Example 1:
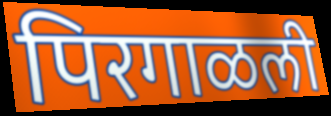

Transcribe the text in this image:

पिरगाळली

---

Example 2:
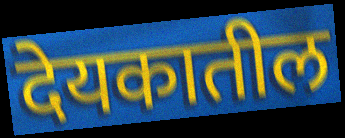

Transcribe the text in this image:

देयकातील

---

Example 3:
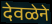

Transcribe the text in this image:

देवळेने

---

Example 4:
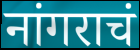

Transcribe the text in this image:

नांगराचं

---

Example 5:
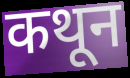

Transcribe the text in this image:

कथून